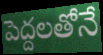
పెద్దలతోనే